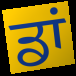
ਡਾਂ